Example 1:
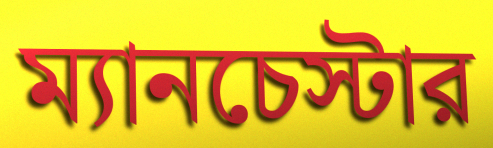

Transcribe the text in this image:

ম্যানচেস্টার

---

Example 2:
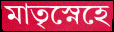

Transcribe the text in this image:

মাতৃস্নেহে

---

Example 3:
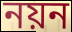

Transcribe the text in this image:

নয়ন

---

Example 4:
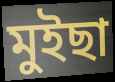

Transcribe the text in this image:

মুইছা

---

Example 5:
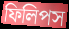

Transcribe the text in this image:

ফিলিপস